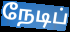
நேடிப்